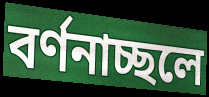
বর্ণনাচ্ছলে